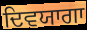
ਦਿਵਯਾਗਾ